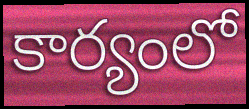
కార్యంలో